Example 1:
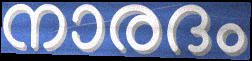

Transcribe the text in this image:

നാരദം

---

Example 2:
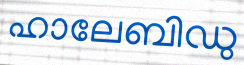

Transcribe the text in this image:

ഹാലേബിഡു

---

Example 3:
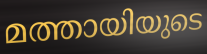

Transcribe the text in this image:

മത്തായിയുടെ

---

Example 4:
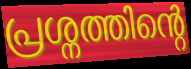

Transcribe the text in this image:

പ്രശ്നത്തിന്റെ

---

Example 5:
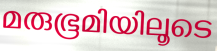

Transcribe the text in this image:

മരുഭൂമിയിലൂടെ